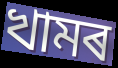
খামৰ